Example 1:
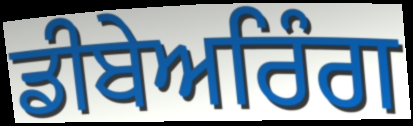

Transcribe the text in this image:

ਡੀਬੇਅਰਿੰਗ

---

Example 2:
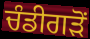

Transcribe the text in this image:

ਚੰਡੀਗੜੋਂ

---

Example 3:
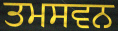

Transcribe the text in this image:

ਤਮਸਵਨ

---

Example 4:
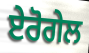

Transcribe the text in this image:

ਏਰੋਗੇਲ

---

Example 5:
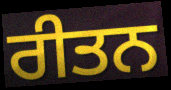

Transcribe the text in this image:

ਰੀਤਨ